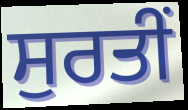
ਸੁਰਤੀਂ